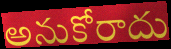
అనుకోరాదు